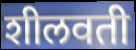
शीलवती